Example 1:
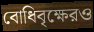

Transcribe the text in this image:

বোধিবৃক্ষেরও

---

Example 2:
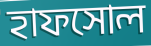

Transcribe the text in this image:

হাফসোল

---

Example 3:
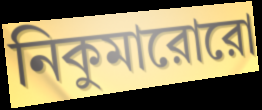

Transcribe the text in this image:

নিকুমারোরো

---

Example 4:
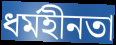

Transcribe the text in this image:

ধর্মহীনতা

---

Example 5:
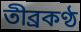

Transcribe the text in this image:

তীব্রকণ্ঠ